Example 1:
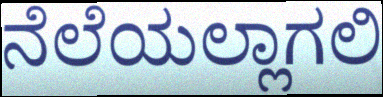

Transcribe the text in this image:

ನೆಲೆಯಲ್ಲಾಗಲಿ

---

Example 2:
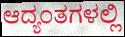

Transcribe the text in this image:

ಆದ್ಯಂತಗಳಲ್ಲಿ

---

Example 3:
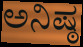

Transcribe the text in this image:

ಅನಿಷ್ಠ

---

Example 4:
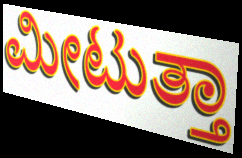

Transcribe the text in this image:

ಮೀಟುತ್ತಾ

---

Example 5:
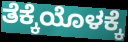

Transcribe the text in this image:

ತೆಕ್ಕೆಯೊಳಕ್ಕೆ